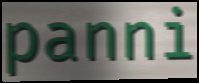
panni